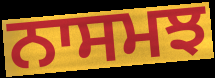
ਨਾਸਮਝ